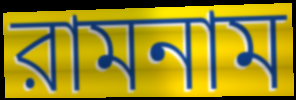
রামনাম